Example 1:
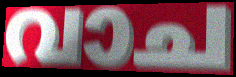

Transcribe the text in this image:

വാച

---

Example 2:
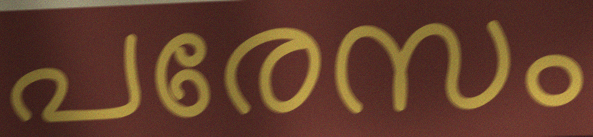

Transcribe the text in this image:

പരേസം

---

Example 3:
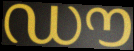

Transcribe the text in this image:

ഡൗ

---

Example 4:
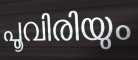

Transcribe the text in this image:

പൂവിരിയും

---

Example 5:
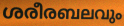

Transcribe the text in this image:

ശരീരബലവും